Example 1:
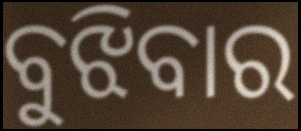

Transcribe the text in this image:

ବୁଝିବାର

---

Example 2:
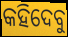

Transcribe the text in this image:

କହିଦେବୁ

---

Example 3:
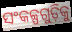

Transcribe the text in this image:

ସଂକଳ୍ପଗୁଡ଼ିକୁ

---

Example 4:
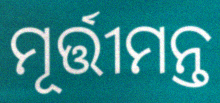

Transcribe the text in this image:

ମୂର୍ତ୍ତୀମନ୍ତ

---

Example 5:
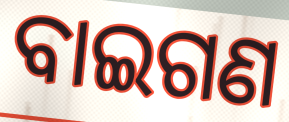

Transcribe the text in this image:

ବାଇଗଣ